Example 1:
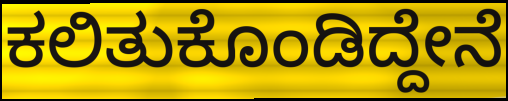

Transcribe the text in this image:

ಕಲಿತುಕೊಂಡಿದ್ದೇನೆ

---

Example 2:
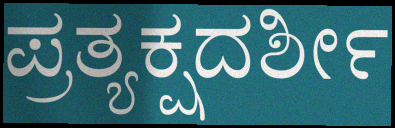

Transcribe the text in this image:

ಪ್ರತ್ಯಕ್ಷದರ್ಶೀ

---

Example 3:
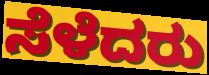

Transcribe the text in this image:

ಸೆಳೆದರು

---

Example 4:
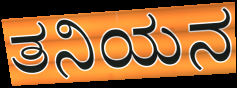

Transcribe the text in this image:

ತನಿಯನ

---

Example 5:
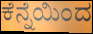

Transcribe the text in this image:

ಕೆನ್ನೆಯಿಂದ